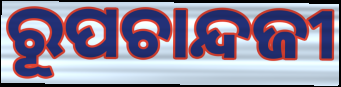
ରୂପଚାନ୍ଦଜୀ